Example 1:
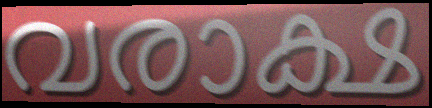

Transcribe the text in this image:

വരാക്ഷ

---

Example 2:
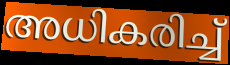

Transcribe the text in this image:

അധികരിച്ച്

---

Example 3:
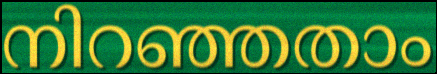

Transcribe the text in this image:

നിറഞ്ഞതാം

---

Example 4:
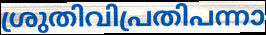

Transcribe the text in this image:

ശ്രുതിവിപ്രതിപന്നാ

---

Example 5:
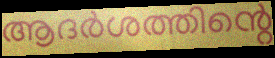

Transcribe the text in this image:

ആദർശത്തിന്റെ